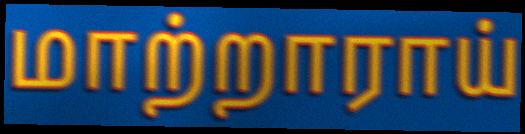
மாற்றாராய்